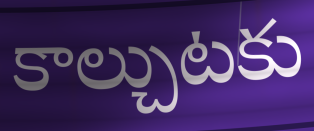
కాల్చుటకు